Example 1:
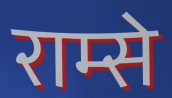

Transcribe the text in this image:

राम्से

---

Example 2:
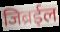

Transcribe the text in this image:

जिब्रईल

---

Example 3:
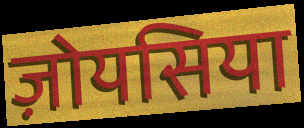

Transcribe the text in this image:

ज़ोयसिया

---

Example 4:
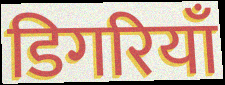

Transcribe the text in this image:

डिगरियाँ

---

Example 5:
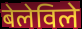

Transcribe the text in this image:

बेलेविले